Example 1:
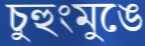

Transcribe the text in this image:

চুহুংমুঙে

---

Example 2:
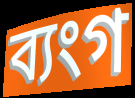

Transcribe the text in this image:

ব্যংগ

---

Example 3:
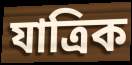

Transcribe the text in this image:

যাত্ৰিক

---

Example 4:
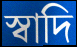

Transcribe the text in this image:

স্বাদি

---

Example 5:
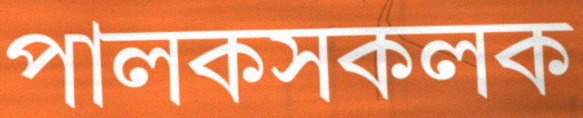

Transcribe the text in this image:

পালকসকলক